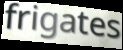
frigates